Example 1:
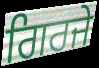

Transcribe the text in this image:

ਗਿਰਜੇ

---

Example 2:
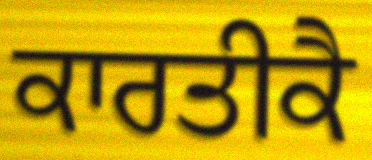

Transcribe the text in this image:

ਕਾਰਤੀਕੈ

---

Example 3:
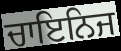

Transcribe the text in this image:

ਚਾਇਨਿਜ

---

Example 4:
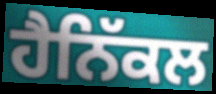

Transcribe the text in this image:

ਹੈਨਿੱਕਲ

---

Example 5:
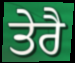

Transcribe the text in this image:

ਤੇਰੈ